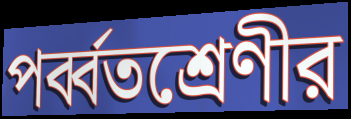
পর্ব্বতশ্রেণীর